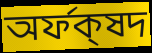
অর্ফক্‌ষদ